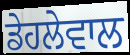
ਡੇਹਲੇਵਾਲ